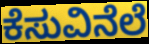
ಕೆಸುವಿನೆಲೆ